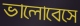
ভালোবেসে